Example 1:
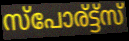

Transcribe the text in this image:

സ്പോര്ട്ട്സ്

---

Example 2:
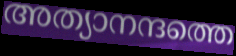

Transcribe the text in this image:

അത്യാനന്ദത്തെ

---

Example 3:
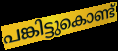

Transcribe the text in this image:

പങ്കിട്ടുകൊണ്ട്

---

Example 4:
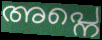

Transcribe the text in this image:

അപ്നെ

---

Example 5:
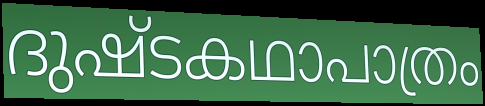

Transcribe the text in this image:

ദുഷ്ടകഥാപാത്രം